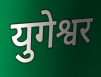
युगेश्वर